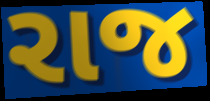
રાજ